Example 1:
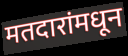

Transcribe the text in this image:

मतदारांमधून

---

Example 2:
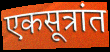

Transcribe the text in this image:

एकसूत्रांत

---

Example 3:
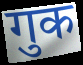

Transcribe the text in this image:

गुक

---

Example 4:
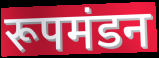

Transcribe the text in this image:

रूपमंडन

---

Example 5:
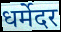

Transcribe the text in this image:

धर्मेदर